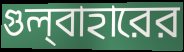
গুল্‌বাহারের